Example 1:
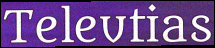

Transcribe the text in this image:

Teleutias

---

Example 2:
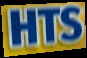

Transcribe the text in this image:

HTS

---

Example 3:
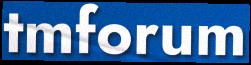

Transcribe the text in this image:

tmforum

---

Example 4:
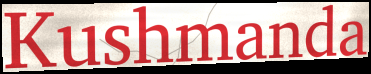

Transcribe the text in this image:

Kushmanda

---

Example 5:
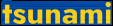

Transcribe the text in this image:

tsunami